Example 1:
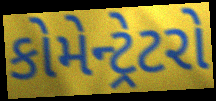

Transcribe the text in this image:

કોમેન્ટ્રેટરો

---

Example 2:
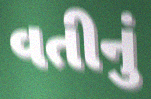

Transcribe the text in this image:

વતીનું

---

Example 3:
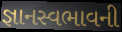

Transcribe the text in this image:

જ્ઞાનસ્વભાવની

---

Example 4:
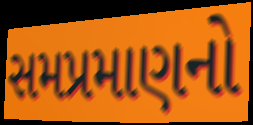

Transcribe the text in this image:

સમપ્રમાણનો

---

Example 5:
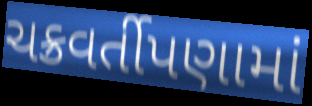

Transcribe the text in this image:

ચક્રવર્તીપણામાં